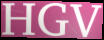
HGV